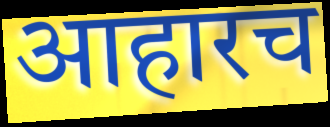
आहारच